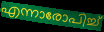
എന്നാരോപിച്ച്